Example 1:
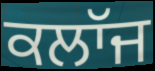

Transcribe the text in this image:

ਕਲਾੱਜ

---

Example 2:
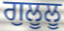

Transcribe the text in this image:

ਗੁਲੂਲੂ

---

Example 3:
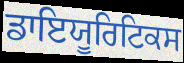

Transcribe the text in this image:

ਡਾਇਯੂਰਿਟਿਕਸ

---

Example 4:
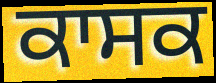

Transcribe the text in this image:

ਕਾਸਕ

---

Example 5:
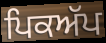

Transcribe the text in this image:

ਪਿਕਅੱਪ